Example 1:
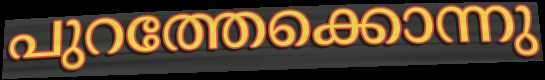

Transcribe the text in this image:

പുറത്തേക്കൊന്നു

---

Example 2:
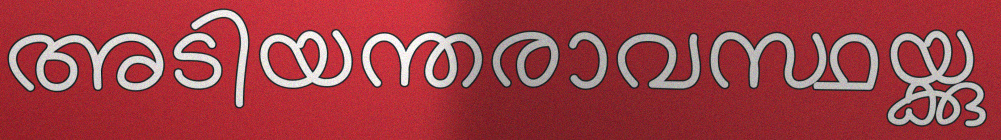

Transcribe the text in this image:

അടിയന്തരാവസ്ഥയ്ക്കു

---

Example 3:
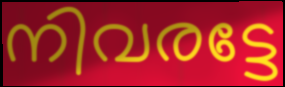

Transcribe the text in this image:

നിവരട്ടേ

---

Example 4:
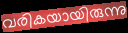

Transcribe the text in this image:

വരികയായിരുന്നു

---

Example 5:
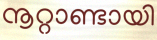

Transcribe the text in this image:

നൂറ്റാണ്ടായി